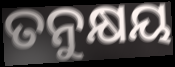
ତନୁକ୍ଷୟ